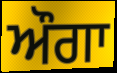
ਔਗਾ